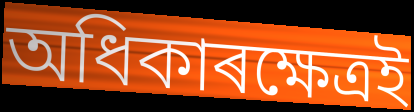
অধিকাৰক্ষেত্ৰই